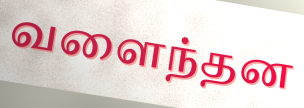
வளைந்தன